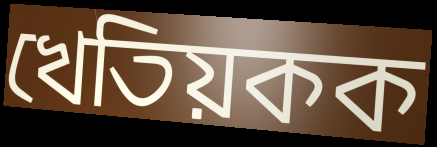
খেতিয়কক